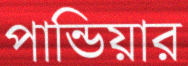
পান্ডিয়ার